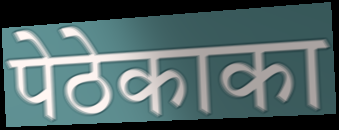
पेठेकाका